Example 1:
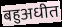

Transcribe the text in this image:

बहुअधीत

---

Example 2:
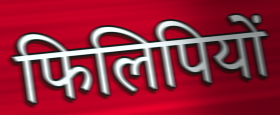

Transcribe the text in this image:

फिलिपियों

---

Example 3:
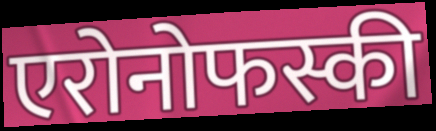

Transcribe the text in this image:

एरोनोफस्की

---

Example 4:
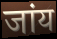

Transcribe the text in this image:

जांय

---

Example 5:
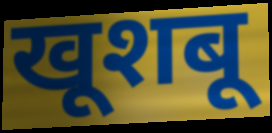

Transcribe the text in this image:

खूशबू